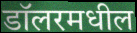
डॉलरमधील